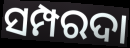
ସମ୍ପରଦା